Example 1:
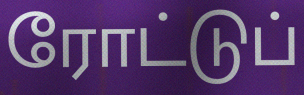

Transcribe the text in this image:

ரோட்டுப்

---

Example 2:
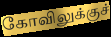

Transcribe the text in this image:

கோவிலுக்குச்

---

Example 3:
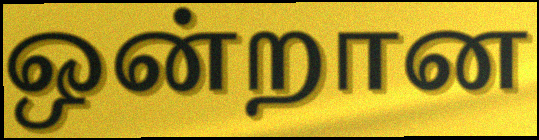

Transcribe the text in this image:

ஒன்றான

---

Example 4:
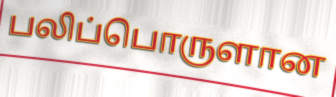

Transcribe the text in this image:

பலிப்பொருளான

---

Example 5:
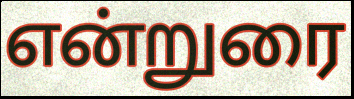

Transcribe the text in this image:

என்றுரை